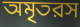
অমৃতরস